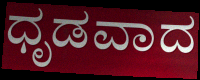
ಧೃಡವಾದ